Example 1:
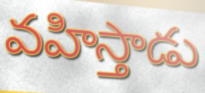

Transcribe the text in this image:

వహిస్తాడు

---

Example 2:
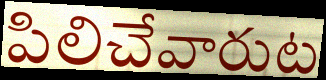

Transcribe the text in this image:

పిలిచేవారుట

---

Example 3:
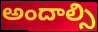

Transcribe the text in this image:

అందాల్సి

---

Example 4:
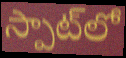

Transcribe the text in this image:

స్పాట్‌లో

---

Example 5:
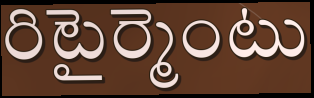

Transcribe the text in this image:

రిటైర్మెంటు